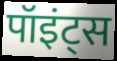
पॉइंट्स